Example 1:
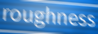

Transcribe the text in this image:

roughness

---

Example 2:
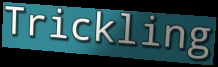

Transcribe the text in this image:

Trickling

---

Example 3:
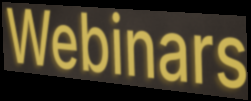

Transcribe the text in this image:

Webinars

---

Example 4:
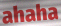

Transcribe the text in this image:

ahaha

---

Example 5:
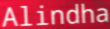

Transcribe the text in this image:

Alindha